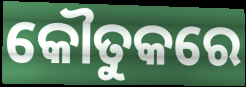
କୌତୁକରେ